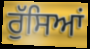
ਰੁੱਸਿਆਂ